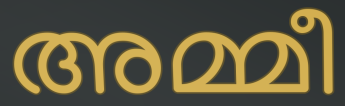
അമ്മീ